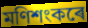
মণিশংকৰে